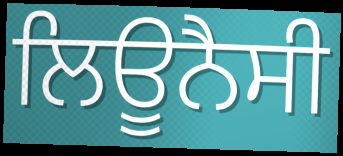
ਲਿਊਨੈਸੀ